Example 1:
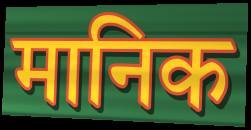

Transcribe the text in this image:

मानिक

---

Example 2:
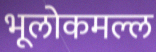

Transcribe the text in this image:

भूलोकमल्ल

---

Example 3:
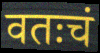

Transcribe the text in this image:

वतःचं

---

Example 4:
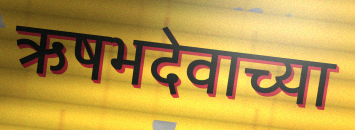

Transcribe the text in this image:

ऋषभदेवाच्या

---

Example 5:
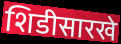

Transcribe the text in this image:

शिडीसारखे